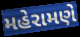
મહેરામણે